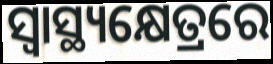
ସ୍ୱାସ୍ଥ୍ୟକ୍ଷେତ୍ରରେ